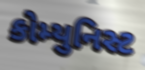
કોમ્યુનિસ્ટ